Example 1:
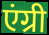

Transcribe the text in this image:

एंग्री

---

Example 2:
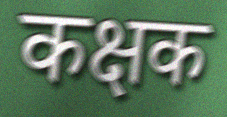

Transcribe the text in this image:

कक्षक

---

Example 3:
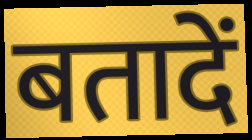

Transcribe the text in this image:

बतादें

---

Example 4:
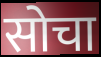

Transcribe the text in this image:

सोचा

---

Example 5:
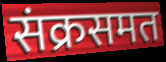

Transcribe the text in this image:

संक्रसमत